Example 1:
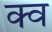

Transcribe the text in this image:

क्व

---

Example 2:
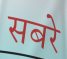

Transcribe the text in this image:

सबरे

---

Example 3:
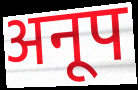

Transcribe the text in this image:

अनूप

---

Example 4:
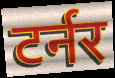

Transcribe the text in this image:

टर्नर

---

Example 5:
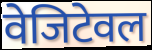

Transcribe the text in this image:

वेजिटेवल